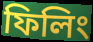
ফিলিং